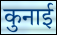
कुनाई